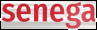
senega